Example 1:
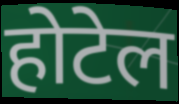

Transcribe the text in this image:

होटेल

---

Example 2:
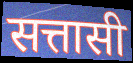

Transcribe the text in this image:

सत्तासी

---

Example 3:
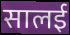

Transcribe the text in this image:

सालई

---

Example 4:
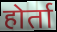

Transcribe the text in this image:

होर्ता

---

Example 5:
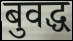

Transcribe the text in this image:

बुवद्ध